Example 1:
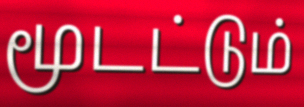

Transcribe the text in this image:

மூடட்டும்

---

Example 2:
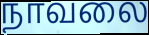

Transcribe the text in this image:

நாவலை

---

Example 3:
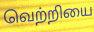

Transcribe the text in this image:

வெற்றியை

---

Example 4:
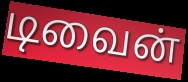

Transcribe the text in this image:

டிவைன்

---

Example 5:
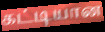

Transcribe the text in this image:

கட்டியான